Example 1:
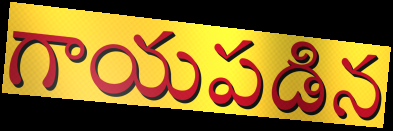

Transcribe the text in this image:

గాయపడిన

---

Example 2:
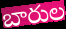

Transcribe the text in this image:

బారుల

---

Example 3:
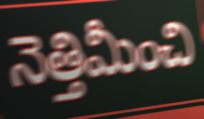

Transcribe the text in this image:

నెత్తిమీంచి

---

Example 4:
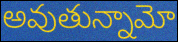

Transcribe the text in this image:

అవుతున్నామో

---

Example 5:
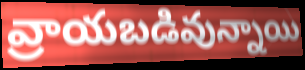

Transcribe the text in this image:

వ్రాయబడివున్నాయి